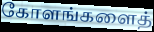
கோளங்களைத்